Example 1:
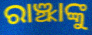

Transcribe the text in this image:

ରାଞ୍ଝାଙ୍କୁ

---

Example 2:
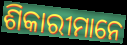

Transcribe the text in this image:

ଶିକାରୀମାନେ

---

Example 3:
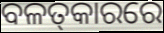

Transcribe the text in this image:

ବଳତ୍‌କାରରେ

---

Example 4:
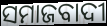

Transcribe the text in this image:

ସମାଜବାଦୀ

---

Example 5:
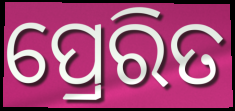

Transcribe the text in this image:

ପ୍ରେରିତ